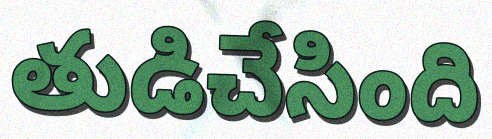
తుడిచేసింది